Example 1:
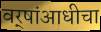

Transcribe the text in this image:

वर्षांआधीचा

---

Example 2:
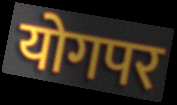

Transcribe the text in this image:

योगपर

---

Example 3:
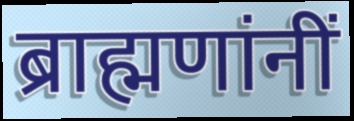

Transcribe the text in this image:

ब्राह्मणांनीं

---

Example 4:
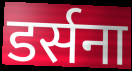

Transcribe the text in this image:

डर्सना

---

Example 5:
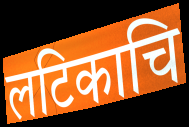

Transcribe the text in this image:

लटिकाचि